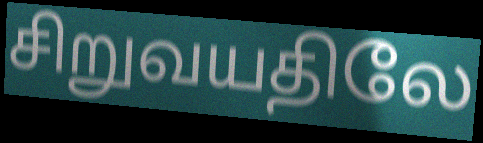
சிறுவயதிலே